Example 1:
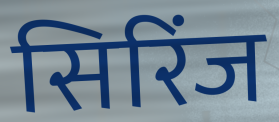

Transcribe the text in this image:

सिरिंज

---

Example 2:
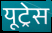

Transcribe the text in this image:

यूट्रेस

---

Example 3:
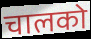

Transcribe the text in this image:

चालको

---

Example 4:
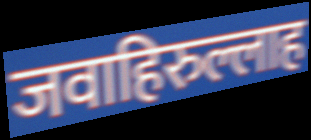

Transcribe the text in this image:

जवाहिरुल्लाह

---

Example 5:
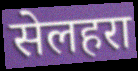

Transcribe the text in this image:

सेलहरा